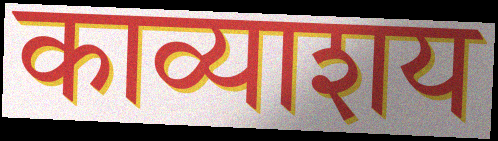
काव्याशय